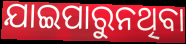
ଯାଇପାରୁନଥିବା